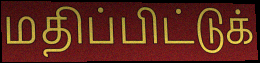
மதிப்பிட்டுக்